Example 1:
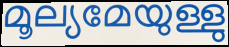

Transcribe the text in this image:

മൂല്യമേയുള്ളു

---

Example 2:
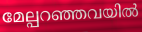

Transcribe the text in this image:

മേല്പറഞ്ഞവയിൽ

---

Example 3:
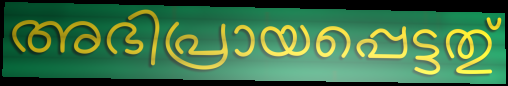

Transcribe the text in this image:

അഭിപ്രായപ്പെട്ടതു്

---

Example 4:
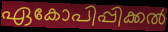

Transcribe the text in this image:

ഏകോപിപ്പിക്കൽ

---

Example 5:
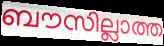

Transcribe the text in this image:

ബൗസില്ലാത്ത